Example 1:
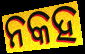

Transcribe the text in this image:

ନକହ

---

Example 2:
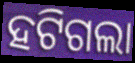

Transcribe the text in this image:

ହଟିଗଲା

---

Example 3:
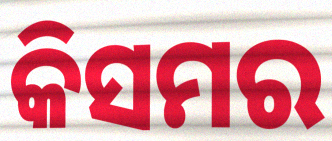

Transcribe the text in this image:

କିସମର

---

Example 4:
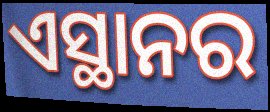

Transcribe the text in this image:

ଏସ୍ଥାନର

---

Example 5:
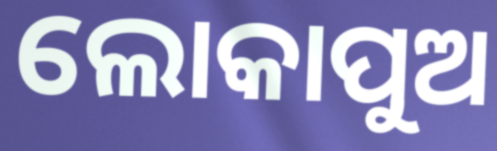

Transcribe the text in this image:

ଲୋକାପୁଅ